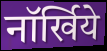
नॉर्खिये